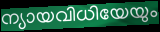
ന്യായവിധിയേയും